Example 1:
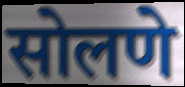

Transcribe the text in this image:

सोलणे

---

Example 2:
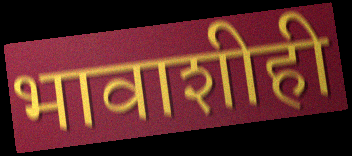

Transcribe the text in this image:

भावाशीही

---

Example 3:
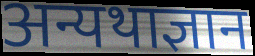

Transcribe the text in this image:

अन्यथाज्ञान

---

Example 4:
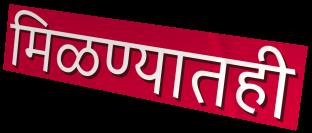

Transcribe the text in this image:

मिळण्यातही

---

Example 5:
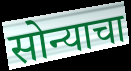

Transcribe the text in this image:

सोन्याचा